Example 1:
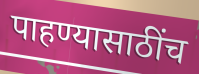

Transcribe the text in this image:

पाहण्यासाठींच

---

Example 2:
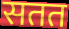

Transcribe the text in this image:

सतत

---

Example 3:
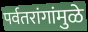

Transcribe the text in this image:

पर्वतरांगांमुळे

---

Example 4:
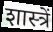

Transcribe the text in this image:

शास्त्रें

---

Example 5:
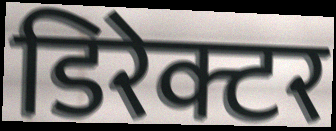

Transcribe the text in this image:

डिरेक्टर